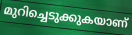
മുറിച്ചെടുക്കുകയാണ്